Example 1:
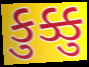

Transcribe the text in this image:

કુક્કુ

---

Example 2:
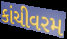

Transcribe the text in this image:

કાંચીવરમ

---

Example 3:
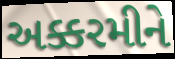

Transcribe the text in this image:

અક્કરમીને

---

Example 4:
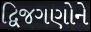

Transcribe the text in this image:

દ્વિજગણોને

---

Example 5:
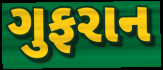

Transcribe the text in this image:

ગુફરાન